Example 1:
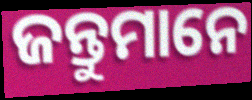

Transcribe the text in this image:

ଜନ୍ତୁମାନେ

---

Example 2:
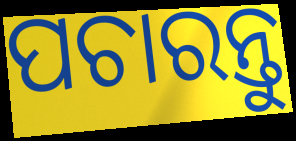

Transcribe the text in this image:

ପଚାରନ୍ତୁ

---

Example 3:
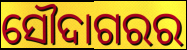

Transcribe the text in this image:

ସୌଦାଗରର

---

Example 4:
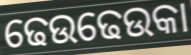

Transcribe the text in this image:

ଢେଉଢେଉକା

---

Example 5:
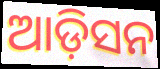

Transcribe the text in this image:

ଆଡ଼ିସନ